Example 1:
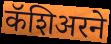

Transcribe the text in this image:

कॅशिअरने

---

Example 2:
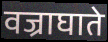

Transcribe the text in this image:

वज्राघाते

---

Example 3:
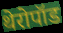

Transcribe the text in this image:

थेरोपॉड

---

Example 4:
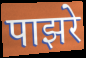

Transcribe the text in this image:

पाझरे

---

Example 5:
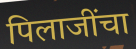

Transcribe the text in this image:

पिलाजींचा